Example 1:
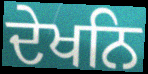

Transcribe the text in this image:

ਦੇਖਨਿ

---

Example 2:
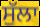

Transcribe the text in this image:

ਸੁੱਲਾ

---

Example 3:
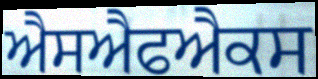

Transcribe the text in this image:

ਐਸਐਫਐਕਸ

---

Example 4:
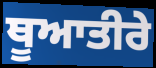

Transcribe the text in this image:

ਥੂਆਤੀਰੇ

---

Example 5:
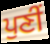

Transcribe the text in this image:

ਪੁਣੀਂ